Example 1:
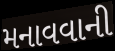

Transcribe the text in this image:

મનાવવાની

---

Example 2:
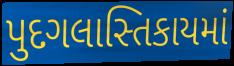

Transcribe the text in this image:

પુદગલાસ્તિકાયમાં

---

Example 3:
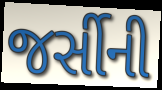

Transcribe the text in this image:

જર્સીની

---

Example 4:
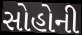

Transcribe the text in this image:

સોહોની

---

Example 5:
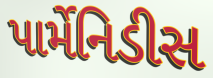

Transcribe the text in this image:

પાર્મેનિડીસ